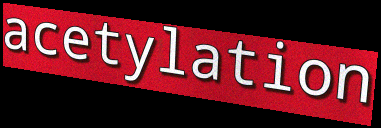
acetylation